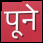
पूने